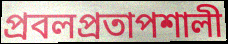
প্রবলপ্রতাপশালী